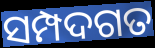
ସମ୍ପଦଗତ